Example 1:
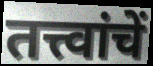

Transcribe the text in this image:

तत्त्वांचें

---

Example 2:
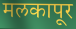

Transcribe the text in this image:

मलकापूर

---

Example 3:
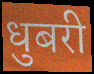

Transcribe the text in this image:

धुबरी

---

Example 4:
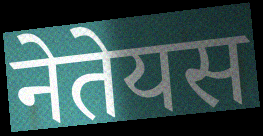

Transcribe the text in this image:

नेतेयस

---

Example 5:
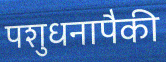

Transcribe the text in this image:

पशुधनापैकी